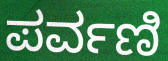
ಪರ್ವಣಿ